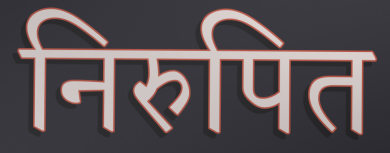
निरुपित